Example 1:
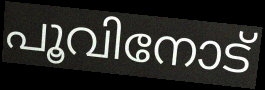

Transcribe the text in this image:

പൂവിനോട്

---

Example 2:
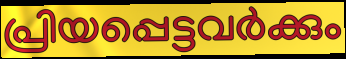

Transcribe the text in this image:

പ്രിയപ്പെട്ടവർക്കും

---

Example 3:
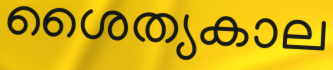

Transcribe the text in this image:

ശൈത്യകാല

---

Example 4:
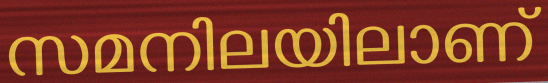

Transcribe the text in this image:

സമനിലയിലാണ്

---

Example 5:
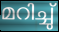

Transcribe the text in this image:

മറിച്ചു്